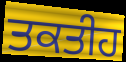
ਤਕਤੀਹ